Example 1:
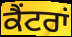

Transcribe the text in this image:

ਕੈਂਟਰਾਂ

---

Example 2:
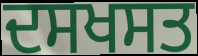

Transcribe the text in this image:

ਦਸਖਸਤ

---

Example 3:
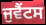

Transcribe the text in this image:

ਜੁਵੈਂਟਸ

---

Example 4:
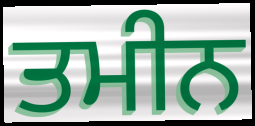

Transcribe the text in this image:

ਤਮੀਨ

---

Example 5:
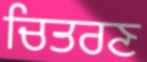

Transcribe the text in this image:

ਚਿਤਰਣ